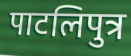
पाटलिपुत्र